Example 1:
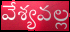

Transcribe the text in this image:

వేశ్యవల్ల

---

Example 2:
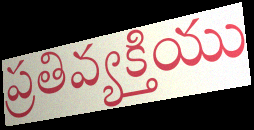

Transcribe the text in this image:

ప్రతివ్యక్తియు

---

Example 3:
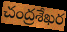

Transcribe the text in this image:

చంద్రశేఖర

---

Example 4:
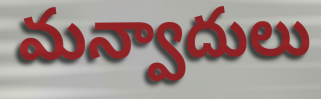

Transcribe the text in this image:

మన్వాదులు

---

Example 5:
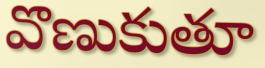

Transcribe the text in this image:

వొణుకుతూ